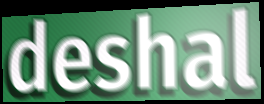
deshal